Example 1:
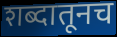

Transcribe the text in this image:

शब्दातूनच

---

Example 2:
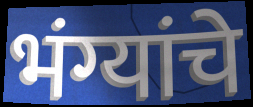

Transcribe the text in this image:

भंग्यांचे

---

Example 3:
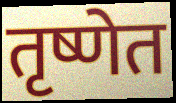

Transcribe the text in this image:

तृष्णेत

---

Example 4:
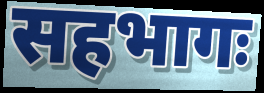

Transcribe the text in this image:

सहभागः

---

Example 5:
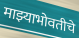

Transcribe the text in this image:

माझ्याभोवतीचे